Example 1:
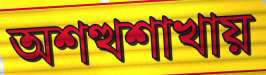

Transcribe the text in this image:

অশত্থশাখায়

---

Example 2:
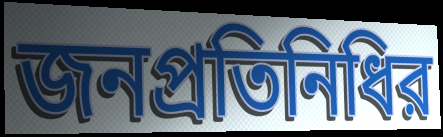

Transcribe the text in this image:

জনপ্রতিনিধির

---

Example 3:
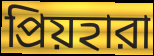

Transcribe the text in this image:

প্রিয়হারা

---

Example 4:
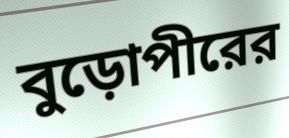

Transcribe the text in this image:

বুড়োপীরের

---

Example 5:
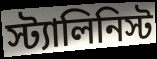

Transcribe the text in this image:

স্ট্যালিনিস্ট